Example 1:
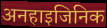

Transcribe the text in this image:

अनहाइजिनिक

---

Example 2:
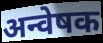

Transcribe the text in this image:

अन्वेषक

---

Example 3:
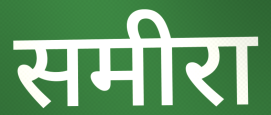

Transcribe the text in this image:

समीरा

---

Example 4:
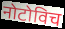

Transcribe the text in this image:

नोटोविच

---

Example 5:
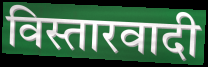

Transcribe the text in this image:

विस्तारवादी